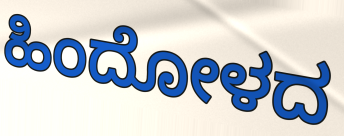
ಹಿಂದೋಳದ